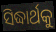
ସିଦ୍ଧାର୍ଥକୁ